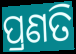
ପ୍ରଣତି